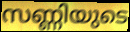
സണ്ണിയുടെ